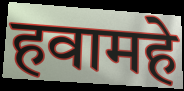
हवामहे